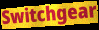
Switchgear